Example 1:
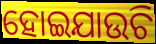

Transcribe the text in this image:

ହୋଇଯାଉଚି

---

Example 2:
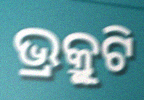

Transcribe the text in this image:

ଭ୍ର୍ରୁକୁଟି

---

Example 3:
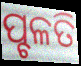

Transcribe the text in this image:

ପ୍ଚଳତି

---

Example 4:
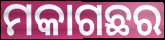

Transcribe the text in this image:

ମକାଗଛର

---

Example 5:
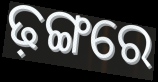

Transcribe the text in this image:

ଢ଼ଙ୍ଗରେ